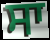
ਸਾ